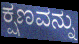
ಕ್ಷಣವನ್ನು